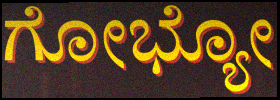
ಗೋಭ್ಯೋ